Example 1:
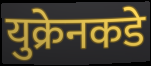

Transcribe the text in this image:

युक्रेनकडे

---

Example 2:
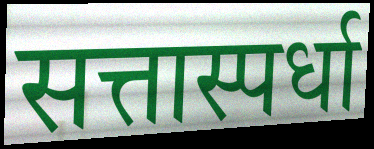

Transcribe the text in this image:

सत्तास्पर्धा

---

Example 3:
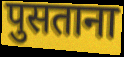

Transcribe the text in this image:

पुसताना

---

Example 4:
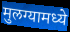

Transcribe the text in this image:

मुलग्यामध्ये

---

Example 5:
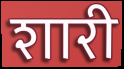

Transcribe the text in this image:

शारी